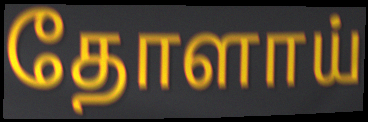
தோளாய்